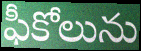
ఫీకోలును